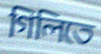
গিলিতে